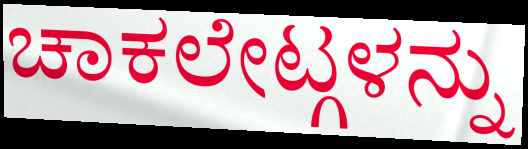
ಚಾಕಲೇಟ್ಗಳನ್ನು